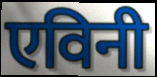
एविनी